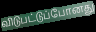
விடுபட்டுப்போனது